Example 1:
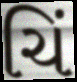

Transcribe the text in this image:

ચિં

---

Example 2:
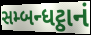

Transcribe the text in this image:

સમ્બન્ધટ્ઠાનં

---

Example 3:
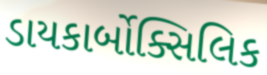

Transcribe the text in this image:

ડાયકાર્બોક્સિલિક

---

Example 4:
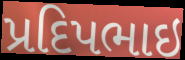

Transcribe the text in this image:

પ્રદિપભાઇ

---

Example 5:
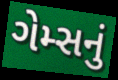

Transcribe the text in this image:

ગેમ્સનું